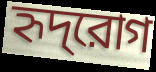
হৃদ্‌রোগ